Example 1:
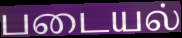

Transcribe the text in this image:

படையல்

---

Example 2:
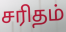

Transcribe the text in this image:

சரிதம்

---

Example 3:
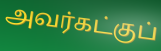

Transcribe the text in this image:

அவர்கட்குப்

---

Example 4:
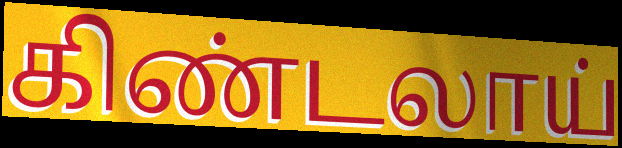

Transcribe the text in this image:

கிண்டலாய்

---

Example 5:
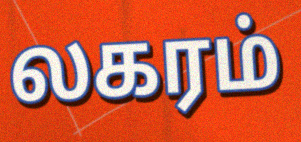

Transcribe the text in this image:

லகரம்